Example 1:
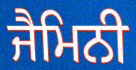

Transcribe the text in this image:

ਜੈਮਿਨੀ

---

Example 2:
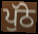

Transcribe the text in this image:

ਪੁੱਠੇ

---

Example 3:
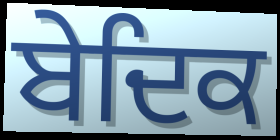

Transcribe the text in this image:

ਬੇਦਿਕ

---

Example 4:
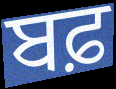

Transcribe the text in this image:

ਬਫ਼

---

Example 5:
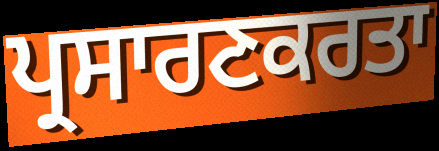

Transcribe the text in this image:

ਪ੍ਰਸਾਰਣਕਰਤਾ